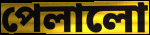
পেলালো